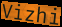
Vizhi